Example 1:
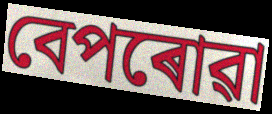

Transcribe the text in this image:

বেপৰোৱা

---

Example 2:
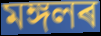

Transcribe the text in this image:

মঙ্গলৰ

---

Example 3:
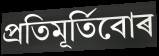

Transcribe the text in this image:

প্ৰতিমূৰ্তিবোৰ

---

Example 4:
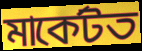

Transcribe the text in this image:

মাৰ্কেটত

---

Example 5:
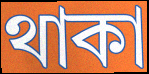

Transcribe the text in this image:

থাকা